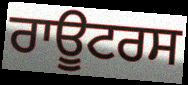
ਰਾਊਟਰਸ